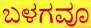
ಬಳಗವೂ